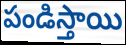
పండిస్తాయి